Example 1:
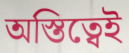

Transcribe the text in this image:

অস্তিত্বেই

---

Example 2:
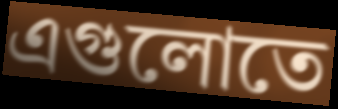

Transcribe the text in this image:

এগুলোতে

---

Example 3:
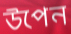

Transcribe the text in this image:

উপেন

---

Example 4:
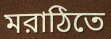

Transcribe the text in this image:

মরাঠিতে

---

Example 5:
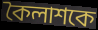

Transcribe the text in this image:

কৈলাশকে